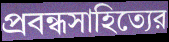
প্রবন্ধসাহিত্যের